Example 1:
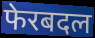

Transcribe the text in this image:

फेरबदल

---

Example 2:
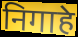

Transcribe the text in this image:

निगाहे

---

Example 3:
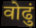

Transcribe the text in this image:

वोढुं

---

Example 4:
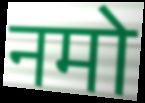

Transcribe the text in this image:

नमो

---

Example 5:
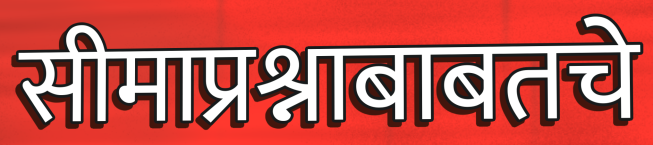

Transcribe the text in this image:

सीमाप्रश्नाबाबतचे